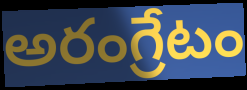
అరంగ్రేటం